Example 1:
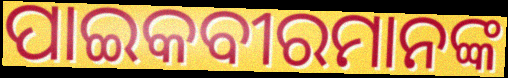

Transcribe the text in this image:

ପାଇକବୀରମାନଙ୍କ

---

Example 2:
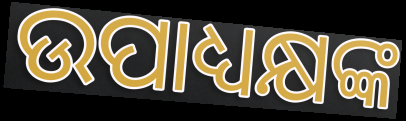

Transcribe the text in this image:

ଉପାଧ୍ୟକ୍ଷଙ୍କ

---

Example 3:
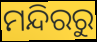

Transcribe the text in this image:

ମନ୍ଦିରରୁ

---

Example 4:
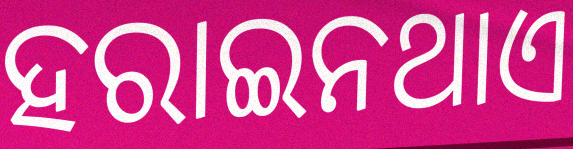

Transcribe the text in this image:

ହରାଇନଥାଏ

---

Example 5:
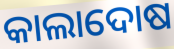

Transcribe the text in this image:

କାଲାଦୋଷ